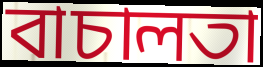
বাচালতা